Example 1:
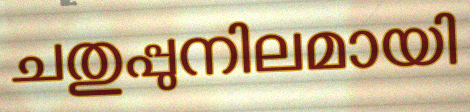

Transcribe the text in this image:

ചതുപ്പുനിലമായി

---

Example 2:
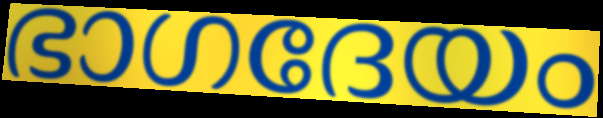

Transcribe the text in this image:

ഭാഗദേയം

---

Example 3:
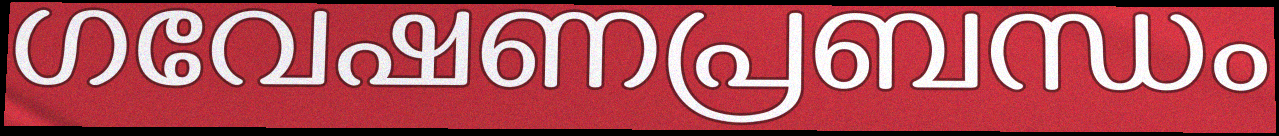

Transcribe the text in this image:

ഗവേഷണപ്രബന്ധം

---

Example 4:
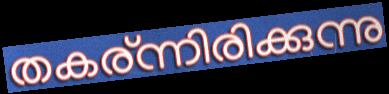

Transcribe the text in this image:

തകര്ന്നിരിക്കുന്നു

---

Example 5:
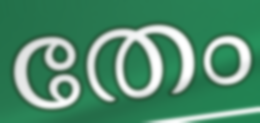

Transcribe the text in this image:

തേം